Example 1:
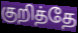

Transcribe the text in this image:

குறித்தே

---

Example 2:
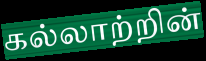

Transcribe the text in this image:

கல்லாற்றின்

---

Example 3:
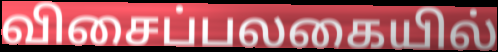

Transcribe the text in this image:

விசைப்பலகையில்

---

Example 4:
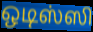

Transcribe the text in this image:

ஒடிஸ்ஸி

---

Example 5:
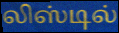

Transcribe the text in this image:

லிஸ்டில்